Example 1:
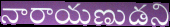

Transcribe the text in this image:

నారాయణుడని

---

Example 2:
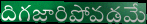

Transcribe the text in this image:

దిగజారిపోవడమే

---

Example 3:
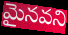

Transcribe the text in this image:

మైనవని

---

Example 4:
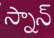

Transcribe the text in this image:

స్నాన్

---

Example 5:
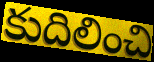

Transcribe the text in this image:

కుదిలించి